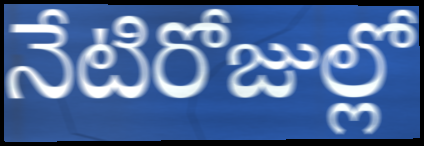
నేటిరోజుల్లో